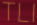
TLI